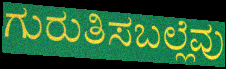
ಗುರುತಿಸಬಲ್ಲೆವು